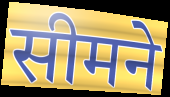
सीमने